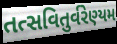
તત્સવિતુર્વરેણ્યમ